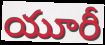
యూరీ